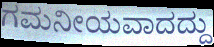
ಗಮನೀಯವಾದದ್ದು